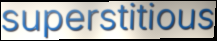
superstitious